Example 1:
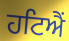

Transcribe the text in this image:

ਹਟਿਐਂ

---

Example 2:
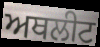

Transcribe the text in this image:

ਅਥਲੀਟ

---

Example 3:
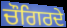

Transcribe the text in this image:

ਚੌਗਿਰਦੇ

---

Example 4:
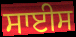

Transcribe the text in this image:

ਸਾਈਸ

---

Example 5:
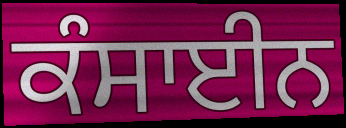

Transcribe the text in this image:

ਕੰਸਾਈਨ